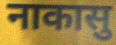
नाकासु